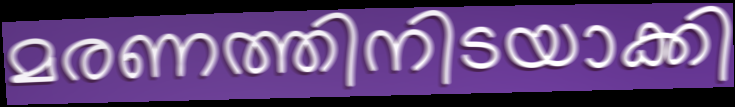
മരണത്തിനിടയാക്കി